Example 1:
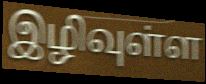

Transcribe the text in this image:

இழிவுள்ள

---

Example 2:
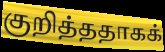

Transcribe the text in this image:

குறித்ததாகக்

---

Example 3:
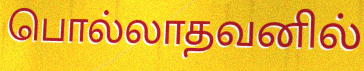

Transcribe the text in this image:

பொல்லாதவனில்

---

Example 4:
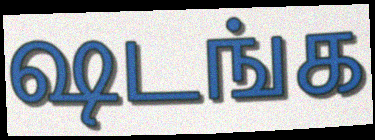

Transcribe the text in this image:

ஷடங்க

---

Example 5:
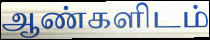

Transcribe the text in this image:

ஆண்களிடம்